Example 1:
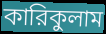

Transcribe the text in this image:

কারিকুলাম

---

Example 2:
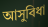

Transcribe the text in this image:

আসুবিধা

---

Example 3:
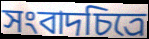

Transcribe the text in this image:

সংবাদচিত্রে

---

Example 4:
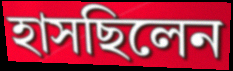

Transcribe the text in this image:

হাসছিলেন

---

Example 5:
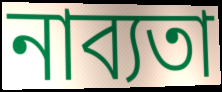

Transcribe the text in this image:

নাব্যতা